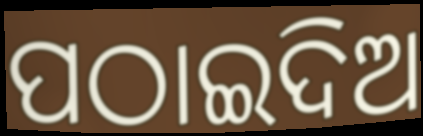
ପଠାଇଦିଅ